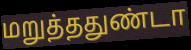
மறுத்ததுண்டா